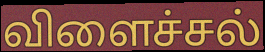
விளைச்சல்